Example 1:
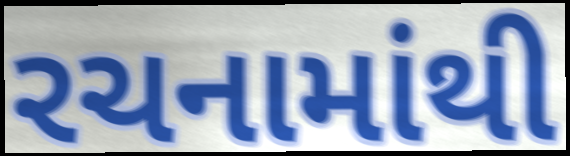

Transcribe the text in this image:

રચનામાંથી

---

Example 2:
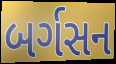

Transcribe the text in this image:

બર્ગસન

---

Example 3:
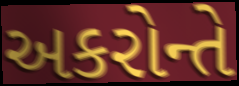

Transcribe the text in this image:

અકરોન્તે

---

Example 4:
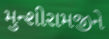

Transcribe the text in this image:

મુન્શીરામજીને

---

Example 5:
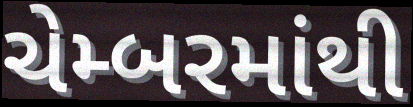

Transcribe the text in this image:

ચેમ્બરમાંથી